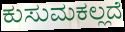
ಕುಸುಮಕಲ್ಲದೆ